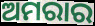
ଅମରାର